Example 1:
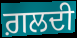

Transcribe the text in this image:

ਗ਼ਲਦੀ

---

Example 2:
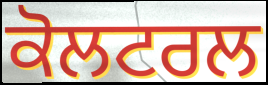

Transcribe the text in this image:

ਕੋਲਟਰਲ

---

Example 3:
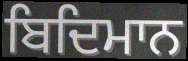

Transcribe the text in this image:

ਬਿਦਿਮਾਨ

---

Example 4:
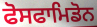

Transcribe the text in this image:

ਫੋਸਫਾਮਿਡੋਨ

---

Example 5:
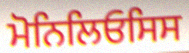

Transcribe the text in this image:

ਮੋਨਿਲਿਓਸਿਸ